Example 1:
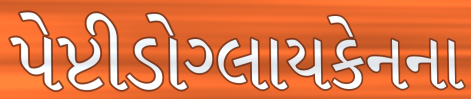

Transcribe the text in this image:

પેપ્ટીડોગ્લાયકેનના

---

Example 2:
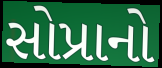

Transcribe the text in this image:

સોપ્રાનો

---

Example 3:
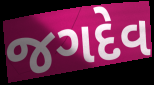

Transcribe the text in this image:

જગદેવ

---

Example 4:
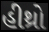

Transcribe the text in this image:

હીથ્રો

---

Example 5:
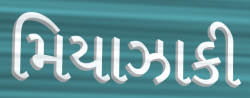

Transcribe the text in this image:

મિયાઝાકી